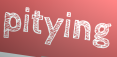
pitying